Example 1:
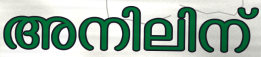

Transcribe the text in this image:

അനിലിന്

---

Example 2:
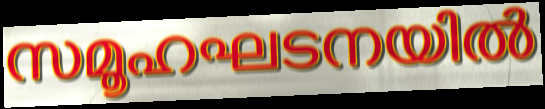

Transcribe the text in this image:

സമൂഹഘടനയിൽ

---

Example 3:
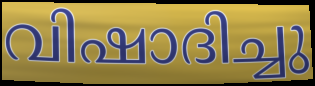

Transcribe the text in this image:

വിഷാദിച്ചു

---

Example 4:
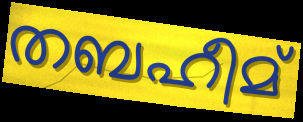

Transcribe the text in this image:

തബഹീമ്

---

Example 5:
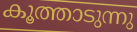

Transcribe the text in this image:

കൂത്താടുന്നു